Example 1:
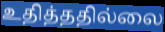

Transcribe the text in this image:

உதித்ததில்லை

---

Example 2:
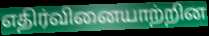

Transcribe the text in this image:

எதிர்வினையாற்றின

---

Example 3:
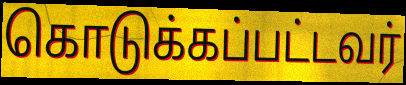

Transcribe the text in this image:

கொடுக்கப்பட்டவர்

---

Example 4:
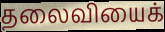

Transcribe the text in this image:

தலைவியைக்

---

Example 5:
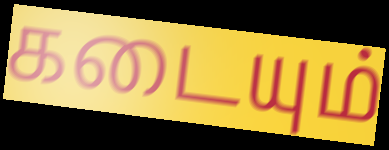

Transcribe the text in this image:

கடையும்